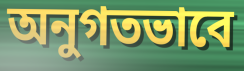
অনুগতভাবে